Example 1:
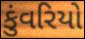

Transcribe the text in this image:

કુંવરિયો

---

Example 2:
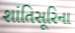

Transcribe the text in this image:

શાંતિસૂરિના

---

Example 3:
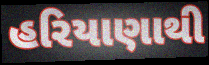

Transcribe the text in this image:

હરિયાણાથી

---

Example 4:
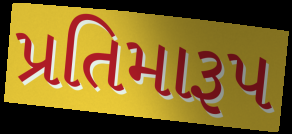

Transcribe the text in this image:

પ્રતિમારૂપ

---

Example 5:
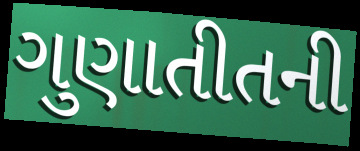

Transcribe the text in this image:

ગુણાતીતની